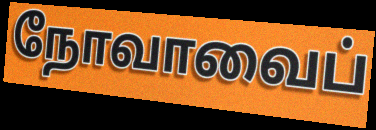
நோவாவைப்